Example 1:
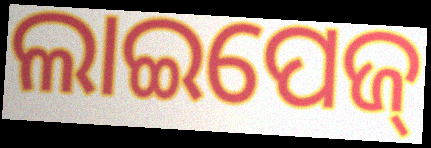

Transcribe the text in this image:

ଲାଇପେଜ୍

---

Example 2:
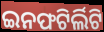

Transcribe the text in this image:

ଇନଫଟିର୍ଲିଟି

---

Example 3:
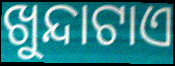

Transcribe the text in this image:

ଖୁନ୍ଦାଟାଏ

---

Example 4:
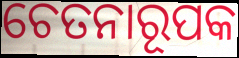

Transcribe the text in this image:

ଚେତନାରୂପକ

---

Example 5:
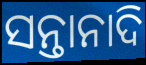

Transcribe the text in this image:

ସନ୍ତାନାଦି